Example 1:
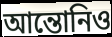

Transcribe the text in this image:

আন্তোনিও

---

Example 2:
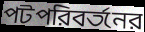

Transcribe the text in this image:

পটপরিবর্তনের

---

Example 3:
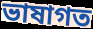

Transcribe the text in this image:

ভাষাগত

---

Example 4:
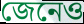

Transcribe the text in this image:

জেনেও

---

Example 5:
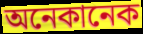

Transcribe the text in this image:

অনেকানেক